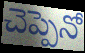
చెప్పెనో